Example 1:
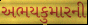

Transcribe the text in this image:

અભયકુમારની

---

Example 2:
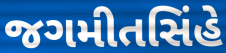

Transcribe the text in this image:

જગમીતસિંહે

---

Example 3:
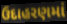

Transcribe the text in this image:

ઉદાહરણમાં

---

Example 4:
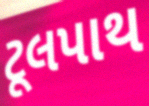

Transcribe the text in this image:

ટૂલપાથ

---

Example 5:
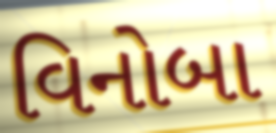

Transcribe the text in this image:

વિનોબા